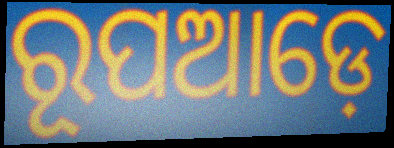
ରୂପଆଡ଼େ